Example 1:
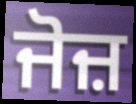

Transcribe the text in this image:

ਜੋਜ਼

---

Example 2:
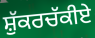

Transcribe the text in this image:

ਸ਼ੁੱਕਰਚੱਕੀਏ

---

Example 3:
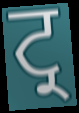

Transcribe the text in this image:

ਟ੍ਰ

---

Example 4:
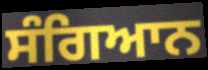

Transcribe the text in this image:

ਸੰਗਿਆਨ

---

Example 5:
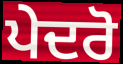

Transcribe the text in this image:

ਪੇਦਰੋ